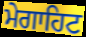
ਮੇਗਾਹਿਟ